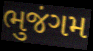
ભુજંગમ